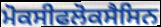
ਮੋਕਸੀਫਲੋਕਸੈਸਿਨ